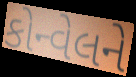
કોન્વેલને